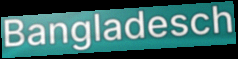
Bangladesch